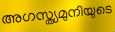
അഗസ്ത്യമുനിയുടെ